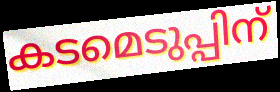
കടമെടുപ്പിന്